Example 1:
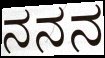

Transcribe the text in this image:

ನನನ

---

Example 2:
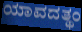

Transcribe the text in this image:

ಯಾವದತ್ಥಂ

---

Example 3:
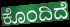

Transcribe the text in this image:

ಕೊಂದಿದೆ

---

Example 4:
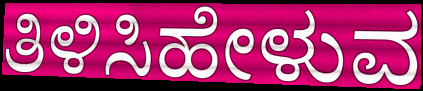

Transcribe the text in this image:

ತಿಳಿಸಿಹೇಳುವ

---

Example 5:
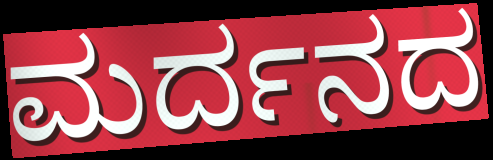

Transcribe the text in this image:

ಮರ್ದನದ